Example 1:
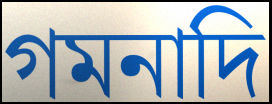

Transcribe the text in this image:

গমনাদি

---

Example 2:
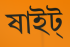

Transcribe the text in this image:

ষাইট্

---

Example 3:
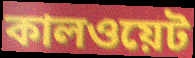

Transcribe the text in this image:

কালওয়েট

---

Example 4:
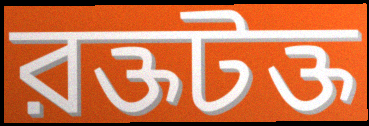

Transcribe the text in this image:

রক্তটক্ত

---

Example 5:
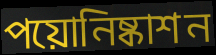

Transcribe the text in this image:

পয়োনিষ্কাশন